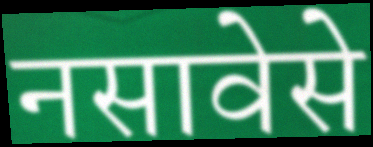
नसावेसे